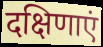
दक्षिणाएं